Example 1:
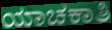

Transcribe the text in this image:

ಯಾಚಕಾತಿ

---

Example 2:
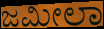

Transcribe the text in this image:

ಜಮೀಲಾ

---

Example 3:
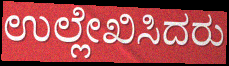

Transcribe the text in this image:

ಉಲ್ಲೇಖಿಸಿದರು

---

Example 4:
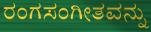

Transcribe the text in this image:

ರಂಗಸಂಗೀತವನ್ನು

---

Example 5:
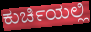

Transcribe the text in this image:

ಕುರ್ಚಿಯಲ್ಲಿ